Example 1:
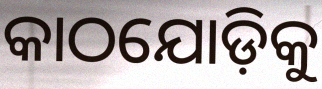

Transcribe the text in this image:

କାଠଯୋଡ଼ିକୁ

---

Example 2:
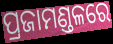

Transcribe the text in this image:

ପ୍ରଜାମଣ୍ଡଳରେ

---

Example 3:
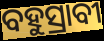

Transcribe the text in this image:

ବହୁସ୍ରାବୀ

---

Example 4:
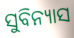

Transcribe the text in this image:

ସୁବିନ୍ୟାସ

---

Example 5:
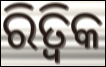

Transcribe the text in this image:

ରିତ୍ୱିକ